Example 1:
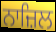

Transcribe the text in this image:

ਨਾਜ਼ਿਲ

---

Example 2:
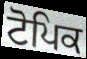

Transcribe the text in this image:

ਟੋਪਿਕ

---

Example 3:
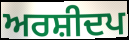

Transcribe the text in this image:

ਅਰਸ਼ੀਦਪ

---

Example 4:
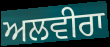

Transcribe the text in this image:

ਅਲਵੀਰਾ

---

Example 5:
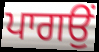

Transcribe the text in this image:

ਪਾਗਉਂ